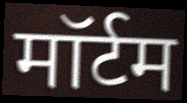
मॉर्टम